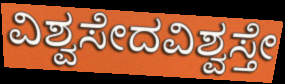
ವಿಶ್ವಸೇದವಿಶ್ವಸ್ತೇ